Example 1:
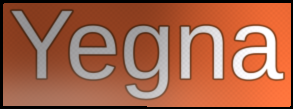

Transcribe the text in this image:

Yegna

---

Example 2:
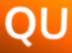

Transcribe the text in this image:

QU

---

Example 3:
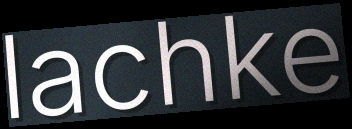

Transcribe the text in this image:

lachke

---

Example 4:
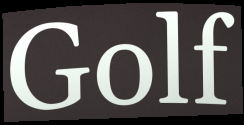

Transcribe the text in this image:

Golf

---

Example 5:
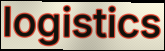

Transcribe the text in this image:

logistics